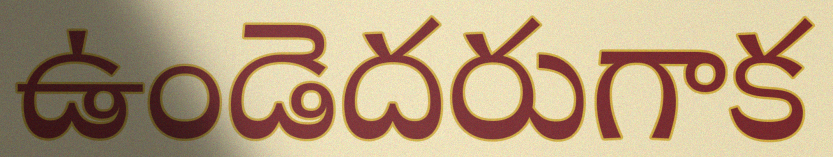
ఉండెదరుగాక